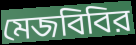
মেজবিবির